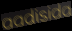
aadisida